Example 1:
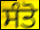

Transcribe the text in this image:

ਸੰਤੋ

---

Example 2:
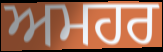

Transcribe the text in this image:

ਅਮਹਰ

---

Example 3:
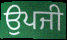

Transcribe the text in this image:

ਉਪਜੀ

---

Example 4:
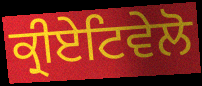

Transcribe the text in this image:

ਕ੍ਰੀਏਟਿਵੇਲੋ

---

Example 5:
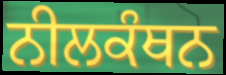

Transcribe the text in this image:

ਨੀਲਕੰਥਨ